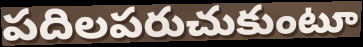
పదిలపరుచుకుంటూ